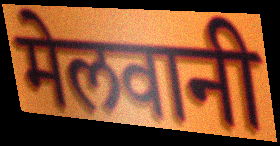
मेलवानी